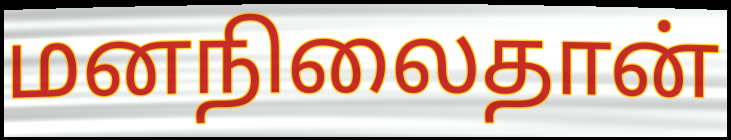
மனநிலைதான்